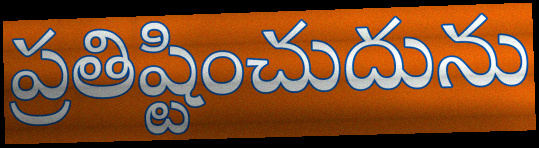
ప్రతిష్టించుదును